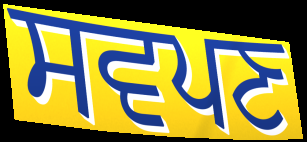
ਸਵਪਣ